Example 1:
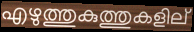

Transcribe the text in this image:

എഴുത്തുകുത്തുകളില്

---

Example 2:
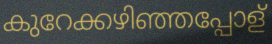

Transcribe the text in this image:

കുറേക്കഴിഞ്ഞപ്പോള്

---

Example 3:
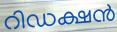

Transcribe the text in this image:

റിഡക്ഷൻ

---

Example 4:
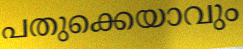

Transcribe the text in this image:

പതുക്കെയാവും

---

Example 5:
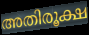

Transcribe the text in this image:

അതിരൂക്ഷ